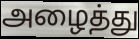
அழைத்து